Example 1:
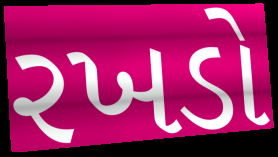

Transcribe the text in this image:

રખડો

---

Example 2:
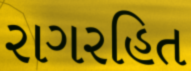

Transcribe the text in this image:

રાગરહિત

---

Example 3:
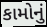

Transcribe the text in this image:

કામોનું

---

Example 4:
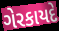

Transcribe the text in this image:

ગેરકાયદે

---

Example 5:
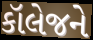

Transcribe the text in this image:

કૉલેજને